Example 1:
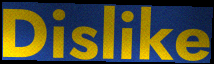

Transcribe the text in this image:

Dislike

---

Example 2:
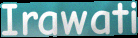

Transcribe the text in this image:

Irawati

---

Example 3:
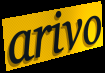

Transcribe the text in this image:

arivo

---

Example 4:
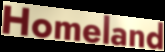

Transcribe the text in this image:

Homeland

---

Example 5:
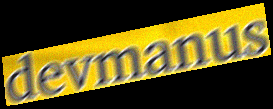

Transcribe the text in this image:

devmanus